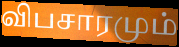
விபசாரமும்